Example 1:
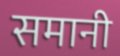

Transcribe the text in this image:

समानी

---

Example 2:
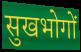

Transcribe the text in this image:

सुखभोगों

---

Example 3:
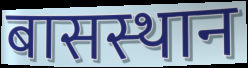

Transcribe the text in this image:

बासस्थान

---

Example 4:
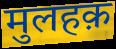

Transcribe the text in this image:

मुलहक़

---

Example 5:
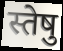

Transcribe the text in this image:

स्तेषु